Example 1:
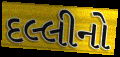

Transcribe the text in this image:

દલ્લીનો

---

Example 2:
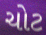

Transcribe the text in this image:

ચોટ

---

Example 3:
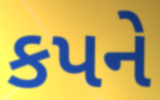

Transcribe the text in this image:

કપને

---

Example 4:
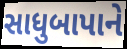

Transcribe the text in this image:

સાધુબાપાને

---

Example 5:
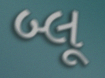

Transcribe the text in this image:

બ્લૂ